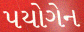
પયોગેન